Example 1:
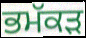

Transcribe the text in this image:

ਭਮੱਕੜ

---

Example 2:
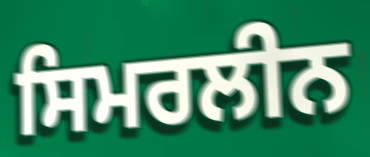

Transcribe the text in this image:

ਸਿਮਰਲੀਨ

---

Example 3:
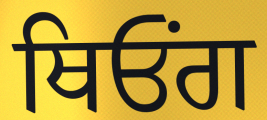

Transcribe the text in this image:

ਥਿਓਂਗ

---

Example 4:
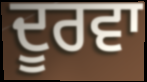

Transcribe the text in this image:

ਦੂਰਵਾ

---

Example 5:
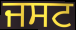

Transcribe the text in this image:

ਜਸਟ